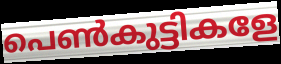
പെൺകുട്ടികളേ